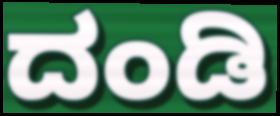
ದಂಡಿ